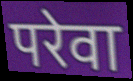
परेवा